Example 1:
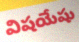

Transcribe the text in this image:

విషయేషు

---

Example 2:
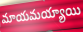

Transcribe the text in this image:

మాయమయ్యాయి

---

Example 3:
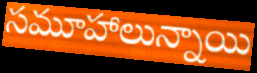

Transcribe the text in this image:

సమూహాలున్నాయి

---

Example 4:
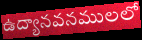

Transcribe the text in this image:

ఉద్యానవనములలో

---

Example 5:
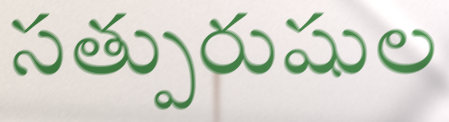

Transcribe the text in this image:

సత్పురుషుల